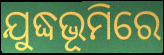
ଯୁଦ୍ଧଭୂମିରେ